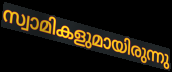
സ്വാമികളുമായിരുന്നു